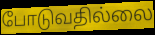
போடுவதில்லை